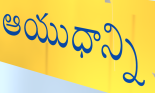
ఆయుధాన్ని